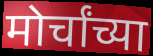
मोर्चांच्या